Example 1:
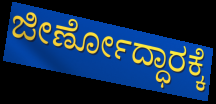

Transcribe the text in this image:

ಜೀರ್ಣೋದ್ಧಾರಕ್ಕೆ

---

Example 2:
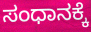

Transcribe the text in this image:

ಸಂಧಾನಕ್ಕೆ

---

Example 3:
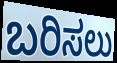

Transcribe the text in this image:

ಬರಿಸಲು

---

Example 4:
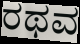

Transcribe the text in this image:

ರಥವ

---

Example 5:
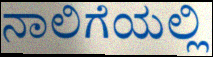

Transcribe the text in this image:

ನಾಲಿಗೆಯಲ್ಲಿ